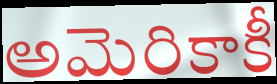
అమెరికాకీ